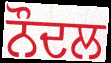
ਨੌਦਲ